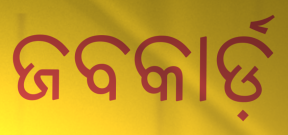
ଜବକାର୍ଡ଼